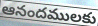
ఆనందములకు